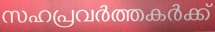
സഹപ്രവർത്തകർക്ക്